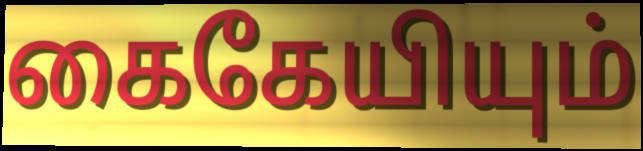
கைகேயியும்